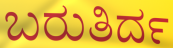
ಬರುತಿರ್ದ